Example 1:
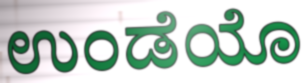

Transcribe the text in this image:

ಉಂಡೆಯೊ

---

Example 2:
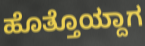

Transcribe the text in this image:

ಹೊತ್ತೊಯ್ದಾಗ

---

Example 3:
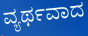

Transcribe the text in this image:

ವ್ಯರ್ಥವಾದ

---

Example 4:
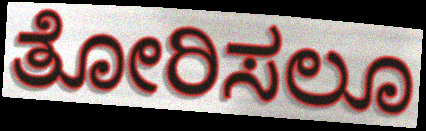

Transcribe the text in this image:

ತೋರಿಸಲೂ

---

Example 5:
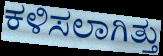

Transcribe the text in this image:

ಕಳಿಸಲಾಗಿತ್ತು